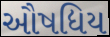
ઔષદ્યિય